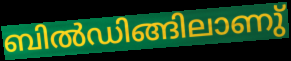
ബിൽഡിങ്ങിലാണു്